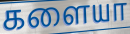
களையா